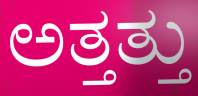
ಅತ್ತತ್ತು